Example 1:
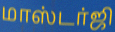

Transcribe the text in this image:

மாஸ்டர்ஜி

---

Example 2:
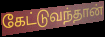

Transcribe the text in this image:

கேட்டுவந்தான்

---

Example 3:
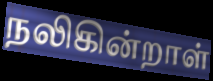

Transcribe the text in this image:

நலிகின்றாள்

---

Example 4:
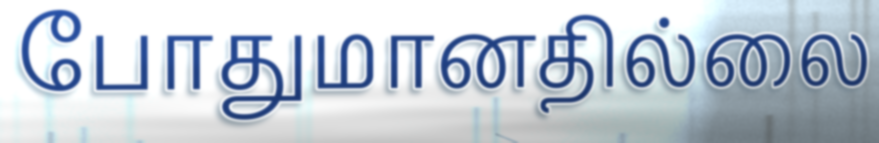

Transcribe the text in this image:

போதுமானதில்லை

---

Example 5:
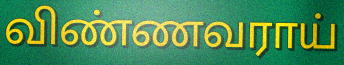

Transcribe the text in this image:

விண்ணவராய்